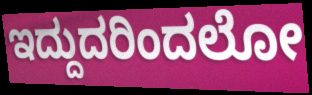
ಇದ್ದುದರಿಂದಲೋ